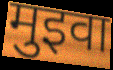
मुइवा